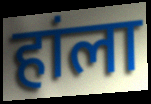
हांला